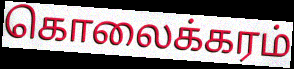
கொலைக்கரம்